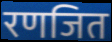
रणजित